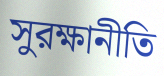
সুরক্ষানীতি